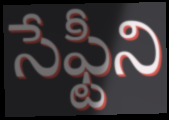
సేఫ్టీని